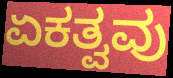
ಏಕತ್ವವು